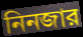
নিনজার